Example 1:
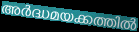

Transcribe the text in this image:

അർദ്ധമയക്കത്തിൽ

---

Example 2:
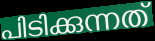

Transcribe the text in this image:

പിടിക്കുന്നത്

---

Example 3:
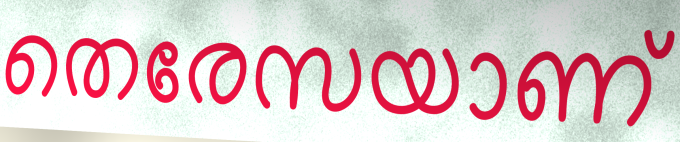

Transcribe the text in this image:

തെരേസയാണ്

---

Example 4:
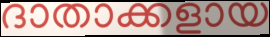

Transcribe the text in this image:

ദാതാക്കളായ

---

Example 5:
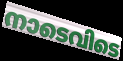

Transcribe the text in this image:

നാടെവിടെ